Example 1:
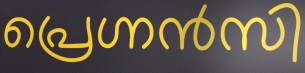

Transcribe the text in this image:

പ്രെഗ്നൻസി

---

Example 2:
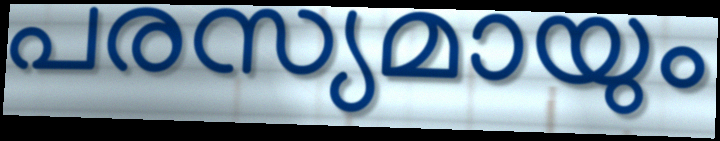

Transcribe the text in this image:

പരസ്യമായും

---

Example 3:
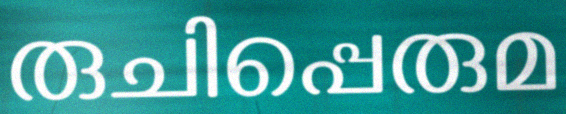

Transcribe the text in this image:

രുചിപ്പെരുമ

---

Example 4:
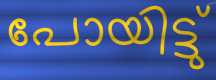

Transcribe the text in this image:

പോയിട്ടു്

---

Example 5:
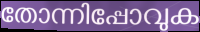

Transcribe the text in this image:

തോന്നിപ്പോവുക